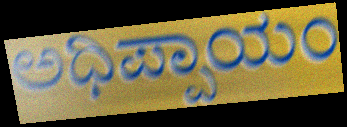
ಅಧಿಪ್ಪಾಯಂ